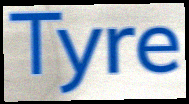
Tyre